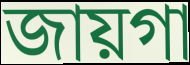
জায়গা